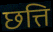
छत्ति